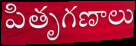
పితృగణాలు